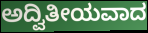
ಅದ್ವಿತೀಯವಾದ